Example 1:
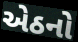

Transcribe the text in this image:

એઠનો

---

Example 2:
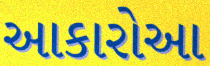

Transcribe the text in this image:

આકારોઆ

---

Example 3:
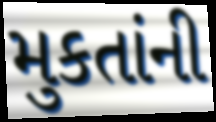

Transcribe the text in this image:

મુકતાંની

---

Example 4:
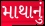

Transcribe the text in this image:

માથાનું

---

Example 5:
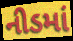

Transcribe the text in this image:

નીડમાં